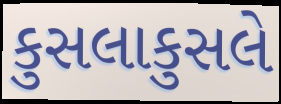
કુસલાકુસલે